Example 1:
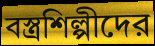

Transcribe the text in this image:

বস্ত্রশিল্পীদের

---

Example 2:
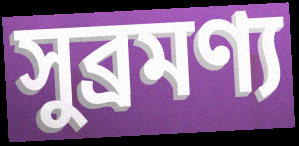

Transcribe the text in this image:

সুব্রমণ্য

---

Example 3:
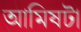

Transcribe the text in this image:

আমিষটা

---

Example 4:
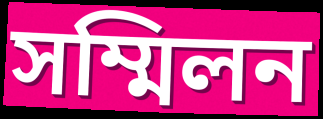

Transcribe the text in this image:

সম্মিলন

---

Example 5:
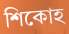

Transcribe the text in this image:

শিকোহ